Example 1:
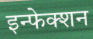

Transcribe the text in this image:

इन्‍फेक्‍शन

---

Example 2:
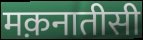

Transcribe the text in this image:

मक़नातीसी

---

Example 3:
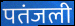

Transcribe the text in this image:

पतंजली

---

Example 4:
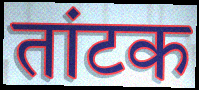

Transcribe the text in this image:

तांटक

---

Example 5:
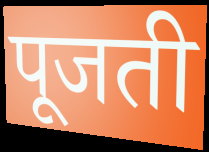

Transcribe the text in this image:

पूजती